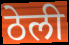
ठेली